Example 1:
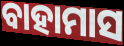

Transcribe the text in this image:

ବାହାମାସ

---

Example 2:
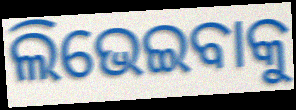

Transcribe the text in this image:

ଲିଭେଇବାକୁ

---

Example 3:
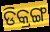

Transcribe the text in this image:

ଡିକ୍ରଙ୍ଗ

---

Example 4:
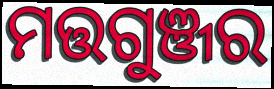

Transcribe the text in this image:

ମତ୍ତଗୁଞ୍ଜର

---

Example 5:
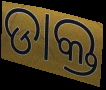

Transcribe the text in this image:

ଡାକ୍ତ